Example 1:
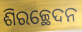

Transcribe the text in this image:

ଶିରଚ୍ଛେଦନ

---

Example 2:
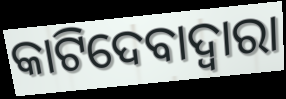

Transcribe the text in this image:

କାଟିଦେବାଦ୍ଵାରା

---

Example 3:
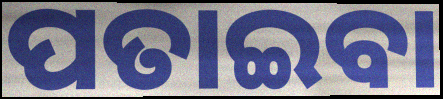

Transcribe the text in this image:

ପତାଇବା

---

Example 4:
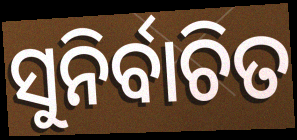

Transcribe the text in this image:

ସୁନିର୍ବାଚିତ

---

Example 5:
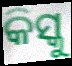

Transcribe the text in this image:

କିସ୍କୁ